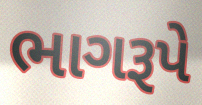
ભાગરૂપે